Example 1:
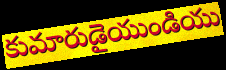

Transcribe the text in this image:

కుమారుడైయుండియు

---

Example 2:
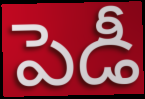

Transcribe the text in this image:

పెడీ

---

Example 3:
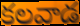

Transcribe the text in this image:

కలవాడ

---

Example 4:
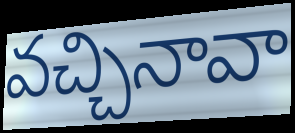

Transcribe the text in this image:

వచ్చినావా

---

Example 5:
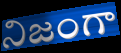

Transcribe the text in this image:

నిజంగా